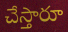
చేస్తారూ